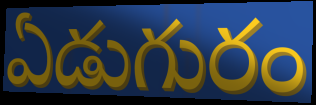
ఏడుగురం